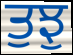
ਤੁਝੁ